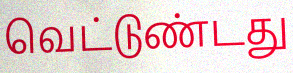
வெட்டுண்டது